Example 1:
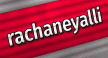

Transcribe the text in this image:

rachaneyalli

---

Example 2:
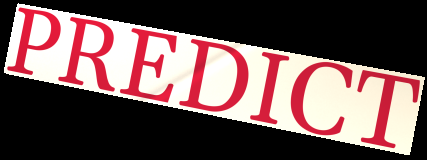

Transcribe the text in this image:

PREDICT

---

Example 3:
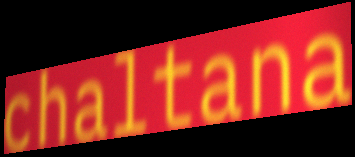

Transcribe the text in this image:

chaltana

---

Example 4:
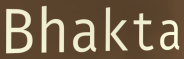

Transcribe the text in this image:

Bhakta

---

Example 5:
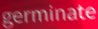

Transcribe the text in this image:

germinate